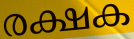
രക്ഷക